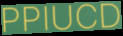
PPIUCD